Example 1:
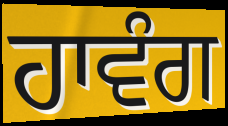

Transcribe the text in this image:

ਹਾਵੰਗ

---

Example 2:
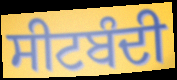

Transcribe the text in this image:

ਸੀਟਬੰਦੀ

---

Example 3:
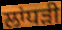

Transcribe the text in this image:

ਲਾਂਧੜੀ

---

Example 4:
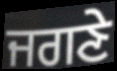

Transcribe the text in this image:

ਜਗਣੇ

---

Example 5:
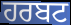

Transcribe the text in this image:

ਹਰਬਟ